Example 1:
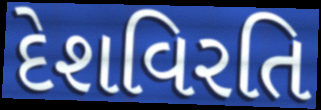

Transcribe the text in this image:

દેશવિરતિ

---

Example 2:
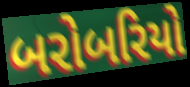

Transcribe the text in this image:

બરોબરિયો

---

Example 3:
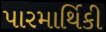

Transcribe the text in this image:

પારમાર્થિકી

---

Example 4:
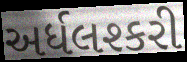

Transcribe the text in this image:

અર્ધલશ્કરી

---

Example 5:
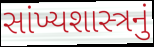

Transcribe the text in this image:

સાંખ્યશાસ્ત્રનું